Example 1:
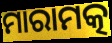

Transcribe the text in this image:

ମାରାମତ୍କ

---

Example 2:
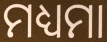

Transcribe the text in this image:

ମଧ୍ୟମା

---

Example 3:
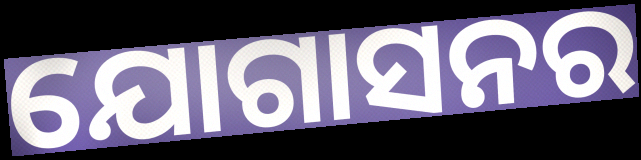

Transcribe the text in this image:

ଯୋଗାସନର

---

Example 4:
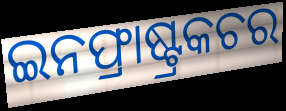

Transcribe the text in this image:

ଇନଫ୍ରାଷ୍ଟ୍ରକଚର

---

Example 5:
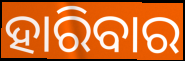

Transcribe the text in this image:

ହାରିବାର